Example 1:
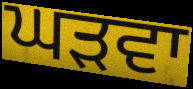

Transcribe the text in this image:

ਘੜਵਾ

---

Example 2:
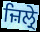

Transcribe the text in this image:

ਜ਼ਿਲ੍ਰੇ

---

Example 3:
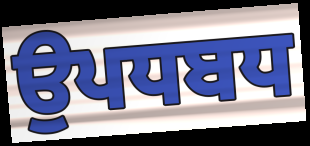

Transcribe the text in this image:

ਉਪਧਬਧ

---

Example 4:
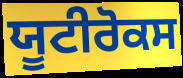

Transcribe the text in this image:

ਯੂਟੀਰੋਕਸ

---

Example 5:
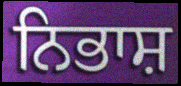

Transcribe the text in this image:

ਨਿਭਾਸ਼